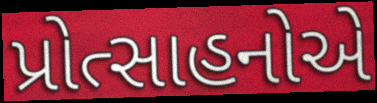
પ્રોત્સાહનોએ